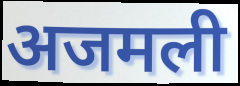
अजमली